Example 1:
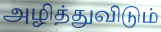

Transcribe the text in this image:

அழித்துவிடும்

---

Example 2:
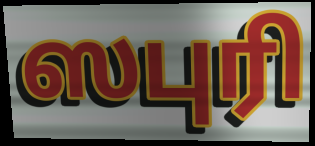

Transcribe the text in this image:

ஸபுரி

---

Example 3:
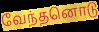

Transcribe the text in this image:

வேந்தனொடு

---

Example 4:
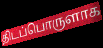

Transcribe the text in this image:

திடப்பொருளாக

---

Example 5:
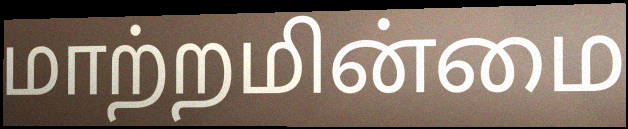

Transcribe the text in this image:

மாற்றமின்மை